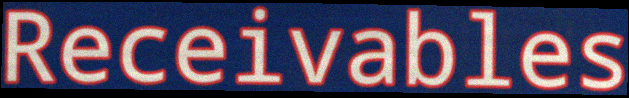
Receivables